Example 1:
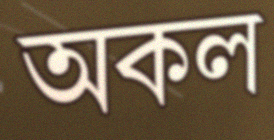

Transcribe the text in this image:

অকল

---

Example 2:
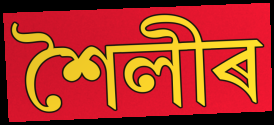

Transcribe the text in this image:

শৈলীৰ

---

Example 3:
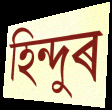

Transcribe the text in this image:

হিন্দুৰ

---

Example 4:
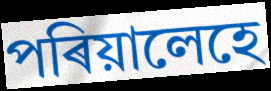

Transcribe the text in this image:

পৰিয়ালেহে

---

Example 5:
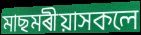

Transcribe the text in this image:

মাছমৰীয়াসকলে